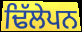
ਢਿੱਲੇਪਨ